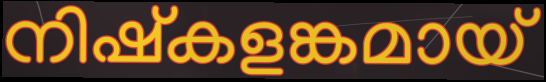
നിഷ്കളങ്കമായ്